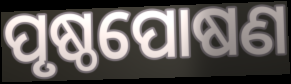
ପୃଷ୍ଠପୋଷଣ